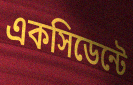
একসিডেন্টে